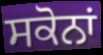
ਸਕੋਨਾਂ